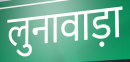
लुनावाड़ा